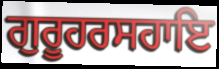
ਗੁਰੂਹਰਸਹਾਇ